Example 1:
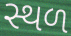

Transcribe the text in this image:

સ્થળ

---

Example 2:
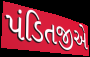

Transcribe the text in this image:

પંડિતજીએ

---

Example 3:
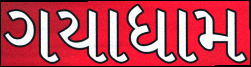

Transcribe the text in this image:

ગયાધામ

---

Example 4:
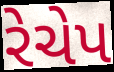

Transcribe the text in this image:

રેચેપ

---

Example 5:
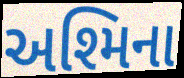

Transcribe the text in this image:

અશ્મિના